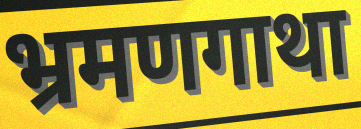
भ्रमणगाथा